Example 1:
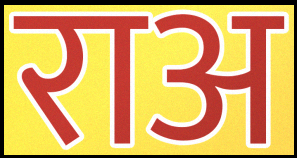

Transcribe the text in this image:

राअ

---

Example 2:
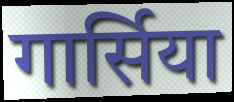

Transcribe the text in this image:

गार्सिया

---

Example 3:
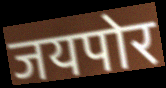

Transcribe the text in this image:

जयपोर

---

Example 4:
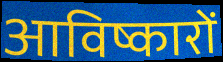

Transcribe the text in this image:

आविष्‍कारों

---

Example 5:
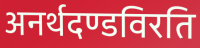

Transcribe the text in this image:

अनर्थदण्डविरति